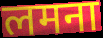
लमना